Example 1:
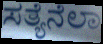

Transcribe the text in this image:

ಸತ್ಯೆನೆಲಾ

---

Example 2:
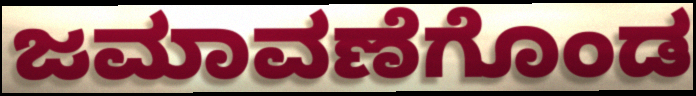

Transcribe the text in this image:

ಜಮಾವಣೆಗೊಂಡ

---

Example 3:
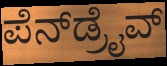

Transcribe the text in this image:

ಪೆನ್‌ಡ್ರೈವ್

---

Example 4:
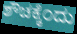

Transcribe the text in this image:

ಶೌಚಕ್ಕೆಂದು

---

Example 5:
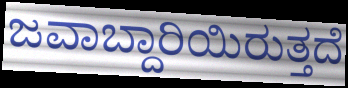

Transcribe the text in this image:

ಜವಾಬ್ದಾರಿಯಿರುತ್ತದೆ